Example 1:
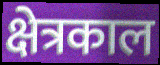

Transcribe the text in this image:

क्षेत्रकाल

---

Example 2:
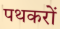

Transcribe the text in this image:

पथकरों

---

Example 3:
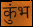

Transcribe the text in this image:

कुंभ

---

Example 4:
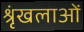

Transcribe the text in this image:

श्रृंखलाओं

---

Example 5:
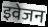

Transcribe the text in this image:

इवेजन